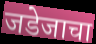
जडेजाचा